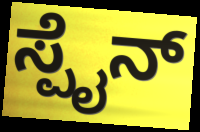
ಸ್ಪೈನ್